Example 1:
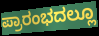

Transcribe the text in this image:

ಪ್ರಾರಂಭದಲ್ಲೂ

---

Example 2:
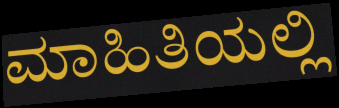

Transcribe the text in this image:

ಮಾಹಿತಿಯಲ್ಲಿ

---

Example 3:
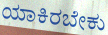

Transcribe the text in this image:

ಯಾಕಿರಬೇಕು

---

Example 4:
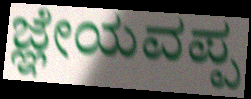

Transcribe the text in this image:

ಜ್ಞೇಯವಪ್ಪ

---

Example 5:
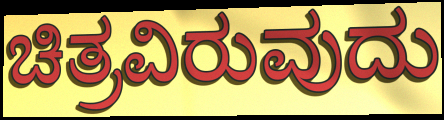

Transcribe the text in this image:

ಚಿತ್ರವಿರುವುದು